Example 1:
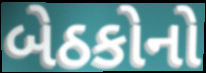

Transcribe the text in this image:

બેઠકોનો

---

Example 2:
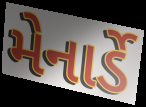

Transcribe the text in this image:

મેનાર્ડે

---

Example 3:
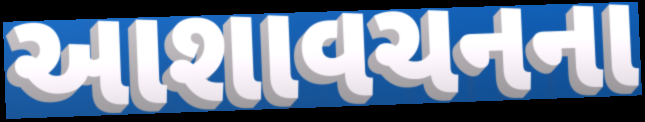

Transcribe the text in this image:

આશાવચનના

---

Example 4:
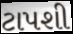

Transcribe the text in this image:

ટાપશી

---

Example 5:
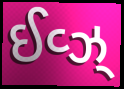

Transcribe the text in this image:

ઈવ્ઝ્